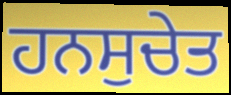
ਹਨਸੁਚੇਤ